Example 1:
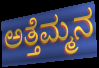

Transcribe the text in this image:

ಅತ್ತೆಮ್ಮನ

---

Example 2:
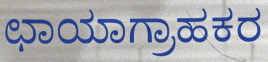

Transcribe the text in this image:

ಛಾಯಾಗ್ರಾಹಕರ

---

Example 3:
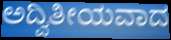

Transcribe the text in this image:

ಅದ್ವಿತೀಯವಾದ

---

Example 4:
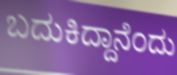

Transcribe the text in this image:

ಬದುಕಿದ್ದಾನೆಂದು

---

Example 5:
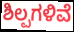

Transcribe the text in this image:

ಶಿಲ್ಪಗಳಿವೆ